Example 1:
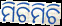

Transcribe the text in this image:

ମିଚିମିଚି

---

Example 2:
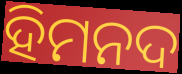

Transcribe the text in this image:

ହିମନଦ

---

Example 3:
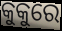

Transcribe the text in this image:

କୁକୁରେ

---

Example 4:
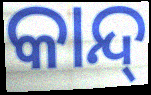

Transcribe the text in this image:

କାନ୍ଦ୍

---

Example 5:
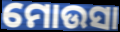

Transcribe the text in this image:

ମୋଉସା